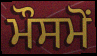
ਮੌਸਮੋਂ